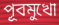
পূবমুখো